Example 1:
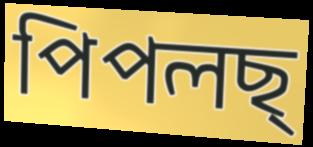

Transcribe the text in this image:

পিপলছ্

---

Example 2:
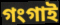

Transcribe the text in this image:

গংগাই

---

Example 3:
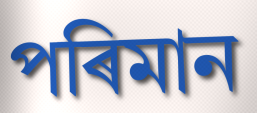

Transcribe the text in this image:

পৰিমান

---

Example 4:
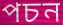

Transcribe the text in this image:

পচন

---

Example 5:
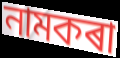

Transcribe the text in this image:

নামকৰা